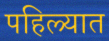
पहिल्यात